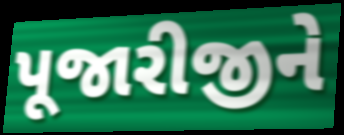
પૂજારીજીને